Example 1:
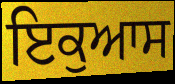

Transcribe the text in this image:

ਇਕੁਆਸ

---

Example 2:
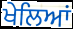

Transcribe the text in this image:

ਖੇਲਿਆਂ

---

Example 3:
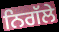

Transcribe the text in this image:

ਨਿਗੱਲੇ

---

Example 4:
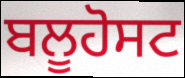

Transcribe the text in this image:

ਬਲੂਹੋਸਟ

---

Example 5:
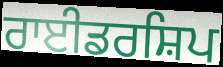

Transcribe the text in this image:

ਰਾਈਡਰਸ਼ਿਪ